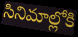
సినిమాల్లోకి